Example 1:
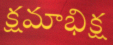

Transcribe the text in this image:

క్షమాభిక్ష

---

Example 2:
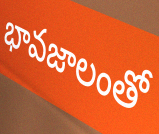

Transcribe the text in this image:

భావజాలంతో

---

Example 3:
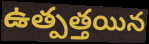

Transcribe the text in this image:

ఉత్పత్తయిన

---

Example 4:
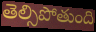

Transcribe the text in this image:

తెల్సిపోతుంది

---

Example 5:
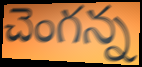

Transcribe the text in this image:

చెంగన్న